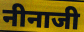
नीनाजी